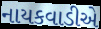
નાયકવાડીએ